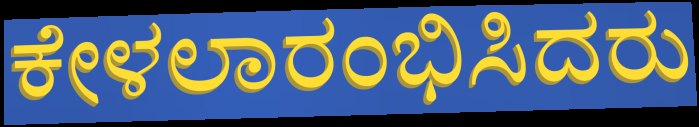
ಕೇಳಲಾರಂಭಿಸಿದರು